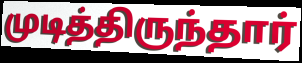
முடித்திருந்தார்